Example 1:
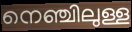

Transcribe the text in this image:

നെഞ്ചിലുള്ള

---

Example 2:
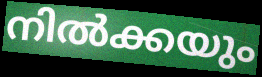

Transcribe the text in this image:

നിൽക്കയും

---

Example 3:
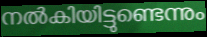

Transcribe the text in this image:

നൽകിയിട്ടുണ്ടെന്നും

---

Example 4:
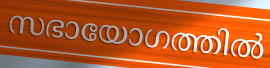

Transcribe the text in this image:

സഭായോഗത്തിൽ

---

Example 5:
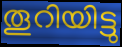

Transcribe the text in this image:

തൂറിയിട്ടു